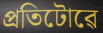
প্ৰতিটোৱে